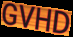
GVHD